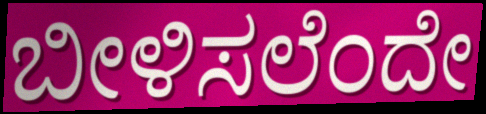
ಬೀಳಿಸಲೆಂದೇ